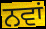
ਨਵਾਂ